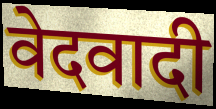
वेदवादी